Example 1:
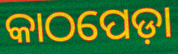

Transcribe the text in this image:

କାଠପେଡ଼ା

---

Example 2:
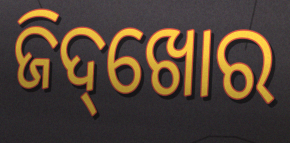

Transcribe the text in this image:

ଜିଦ୍‌ଖୋର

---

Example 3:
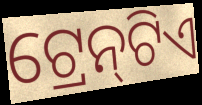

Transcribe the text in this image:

ଟ୍ରେନ୍‌ଟିଏ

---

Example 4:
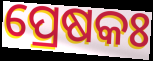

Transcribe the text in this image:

ପ୍ରେଷକଃ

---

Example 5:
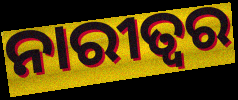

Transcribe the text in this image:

ନାରୀତ୍ଵର